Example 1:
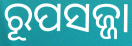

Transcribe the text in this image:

ରୂପସଜ୍ଜା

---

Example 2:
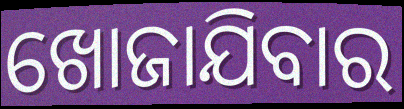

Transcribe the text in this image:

ଖୋଜାଯିବାର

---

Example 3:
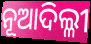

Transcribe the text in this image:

ନୂଆଦିଲ୍ଳୀ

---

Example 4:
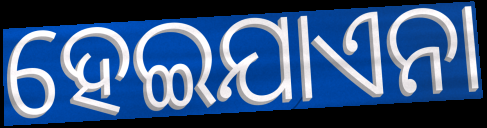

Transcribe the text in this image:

ହେଇଯାଏନା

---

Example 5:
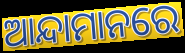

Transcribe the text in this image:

ଆନ୍ଦାମାନରେ